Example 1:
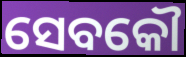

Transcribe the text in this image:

ସେବକୌ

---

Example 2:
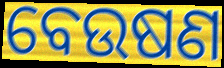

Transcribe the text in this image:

ବେଉଷଣ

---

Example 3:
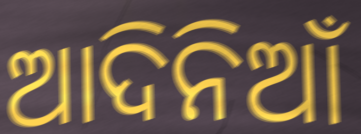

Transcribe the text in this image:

ଆଦିନିଆଁ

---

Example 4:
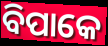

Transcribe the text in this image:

ବିପାକେ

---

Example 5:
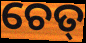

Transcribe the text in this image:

ଚେତ୍